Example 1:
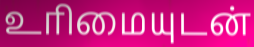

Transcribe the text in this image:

உரிமையுடன்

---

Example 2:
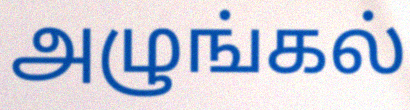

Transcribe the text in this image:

அழுங்கல்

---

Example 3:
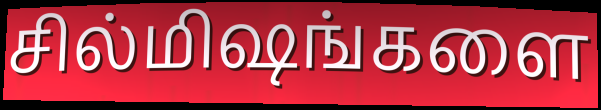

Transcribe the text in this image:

சில்மிஷங்களை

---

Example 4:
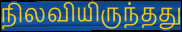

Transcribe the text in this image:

நிலவியிருந்தது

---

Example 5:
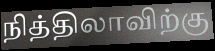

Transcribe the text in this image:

நித்திலாவிற்கு